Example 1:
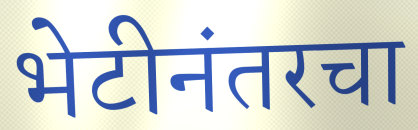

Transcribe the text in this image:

भेटीनंतरचा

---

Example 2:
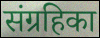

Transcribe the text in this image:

संग्रहिका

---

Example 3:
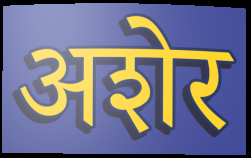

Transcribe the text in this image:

अशेर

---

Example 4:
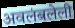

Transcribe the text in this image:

अवलंबलेली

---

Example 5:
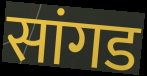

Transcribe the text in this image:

सांगड